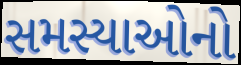
સમસ્યાઓનો